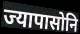
ज्यापासोनि